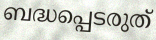
ബദ്ധപ്പെടരുത്